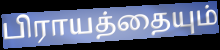
பிராயத்தையும்